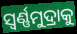
ସ୍ଵର୍ଣ୍ଣମୁଦ୍ରାକୁ